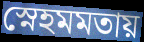
স্নেহমমতায়